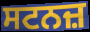
ਸਟਨਜ਼